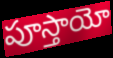
పూస్తాయో